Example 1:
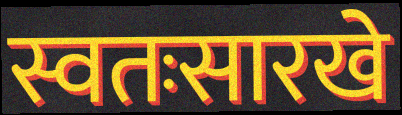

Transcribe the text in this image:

स्वतःसारखे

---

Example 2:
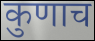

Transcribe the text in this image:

कुणाच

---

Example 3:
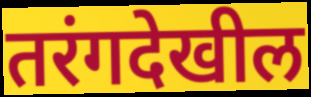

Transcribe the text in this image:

तरंगदेखील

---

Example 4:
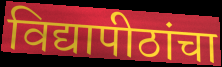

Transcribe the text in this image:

विद्यापीठांचा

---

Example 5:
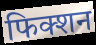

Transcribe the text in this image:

फिक्‍शन